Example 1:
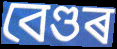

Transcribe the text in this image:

বেণ্ডৰ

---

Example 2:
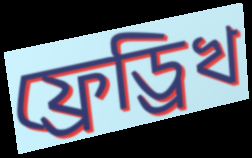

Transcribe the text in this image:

ফ্ৰেড্ৰিখ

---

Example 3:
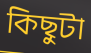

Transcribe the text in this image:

কিছুটা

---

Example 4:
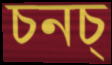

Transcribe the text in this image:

চনচ্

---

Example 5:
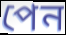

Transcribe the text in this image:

পেন